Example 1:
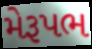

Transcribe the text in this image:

મેરૂપભ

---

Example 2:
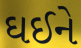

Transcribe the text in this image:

ઘઈને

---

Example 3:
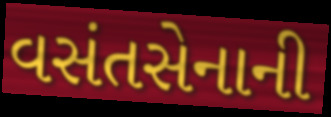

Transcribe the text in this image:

વસંતસેનાની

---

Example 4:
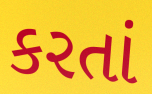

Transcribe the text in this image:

કરતાં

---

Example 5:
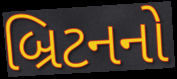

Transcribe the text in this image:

બ્રિટનનો